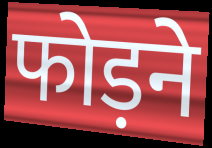
फोड़ने